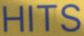
HITS